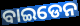
ବାଇଡେନ